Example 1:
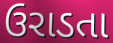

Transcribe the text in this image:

ઉરાડતા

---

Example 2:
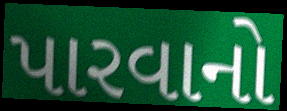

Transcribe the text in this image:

પારવાનો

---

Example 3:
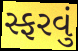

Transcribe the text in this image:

સ્ફરવું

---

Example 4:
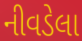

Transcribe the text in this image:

નીવડેલા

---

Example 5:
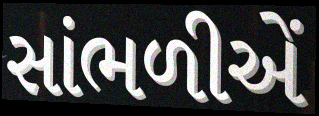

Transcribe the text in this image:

સાંભળીએં